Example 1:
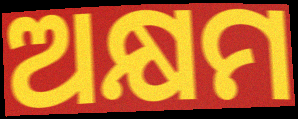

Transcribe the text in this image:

ଅକ୍ଷମ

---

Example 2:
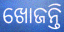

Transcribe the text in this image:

ଖୋଜନ୍ତି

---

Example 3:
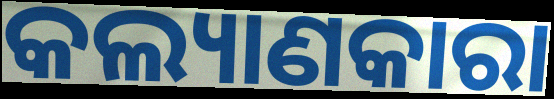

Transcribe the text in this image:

କଲ୍ୟାଣକାରା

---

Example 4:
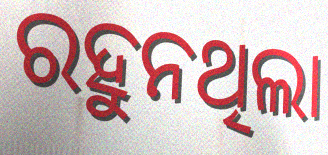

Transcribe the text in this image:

ରହୁନଥିଲା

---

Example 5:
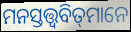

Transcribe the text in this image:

ମନସ୍ତତ୍ତ୍ୱବିତ୍‌ମାନେ